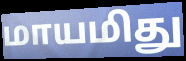
மாயமிது